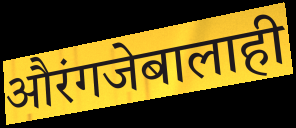
औरंगजेबालाही